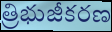
త్రిభుజీకరణ